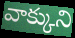
వాక్కుని